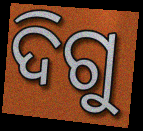
ଦିଗୁ